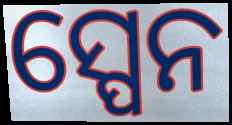
ସ୍ପେନ